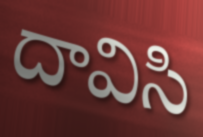
దావిసి